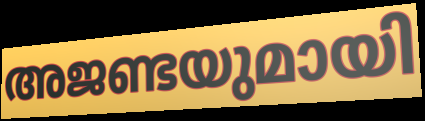
അജണ്ടയുമായി